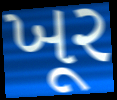
ખૂર